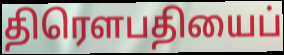
திரெளபதியைப்